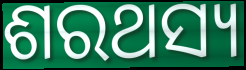
ଶରଥସ୍ୟ